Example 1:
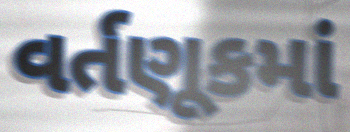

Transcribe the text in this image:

વર્તણૂકમાં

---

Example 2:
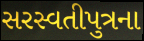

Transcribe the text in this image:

સરસ્વતીપુત્રના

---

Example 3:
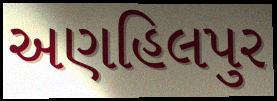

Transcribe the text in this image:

અણહિલપુર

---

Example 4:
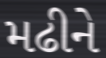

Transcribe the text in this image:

મઢીને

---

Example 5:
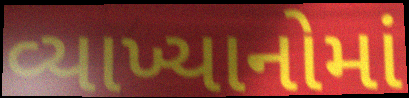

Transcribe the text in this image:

વ્યાખ્યાનોમાં